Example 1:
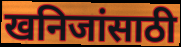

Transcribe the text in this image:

खनिजांसाठी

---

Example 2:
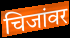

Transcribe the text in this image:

चिजांवर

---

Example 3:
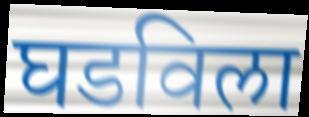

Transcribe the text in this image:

घडविला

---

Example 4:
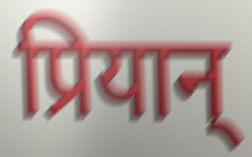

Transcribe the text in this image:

प्रियान्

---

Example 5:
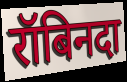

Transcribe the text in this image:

रॉबिनदा